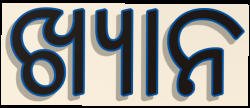
ଖ୍ୟାନ